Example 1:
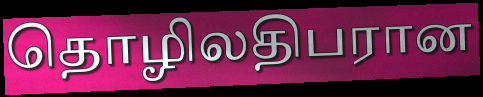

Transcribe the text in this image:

தொழிலதிபரான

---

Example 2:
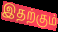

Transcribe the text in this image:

இதற்கும்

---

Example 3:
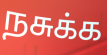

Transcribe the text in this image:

நசுக்க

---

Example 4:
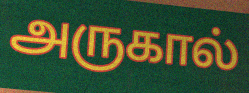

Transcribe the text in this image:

அருகால்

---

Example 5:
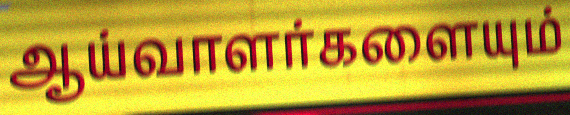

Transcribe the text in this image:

ஆய்வாளர்களையும்